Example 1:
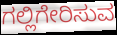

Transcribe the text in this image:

ಗಲ್ಲಿಗೇರಿಸುವ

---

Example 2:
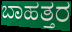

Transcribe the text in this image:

ಬಾಹತ್ತರ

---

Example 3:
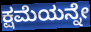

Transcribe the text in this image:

ಕ್ಷಮೆಯನ್ನೇ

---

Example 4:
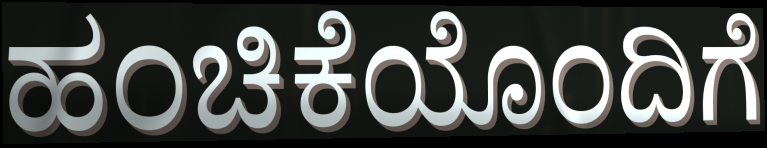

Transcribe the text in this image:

ಹಂಚಿಕೆಯೊಂದಿಗೆ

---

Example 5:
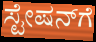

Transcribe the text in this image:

ಸ್ಟೇಷನ್‌ಗೆ